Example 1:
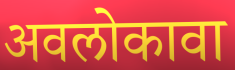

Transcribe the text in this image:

अवलोकावा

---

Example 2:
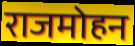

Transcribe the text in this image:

राजमोहन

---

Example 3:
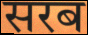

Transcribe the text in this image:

सरब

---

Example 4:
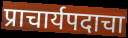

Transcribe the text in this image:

प्राचार्यपदाचा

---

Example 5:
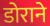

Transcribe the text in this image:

डोराने